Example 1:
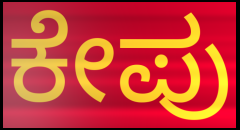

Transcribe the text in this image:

ಕೇಪು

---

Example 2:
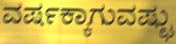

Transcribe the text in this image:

ವರ್ಷಕ್ಕಾಗುವಷ್ಟು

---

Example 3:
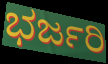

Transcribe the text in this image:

ಭರ್ಜರಿ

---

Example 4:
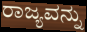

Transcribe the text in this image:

ರಾಜ್ಯವನ್ನು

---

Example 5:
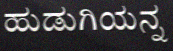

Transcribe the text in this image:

ಹುಡುಗಿಯನ್ನ